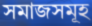
সমাজসমূহ